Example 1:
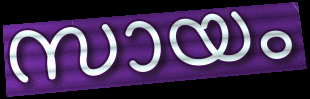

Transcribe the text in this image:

സായം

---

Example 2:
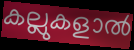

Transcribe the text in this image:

കല്ലുകളാൽ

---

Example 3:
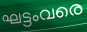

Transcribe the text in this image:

ഘട്ടംവരെ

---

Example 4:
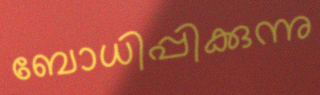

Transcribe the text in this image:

ബോധിപ്പിക്കുന്നു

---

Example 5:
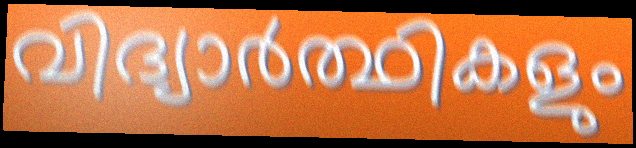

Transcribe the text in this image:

വിദ്യാർത്ഥികളും